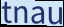
tnau